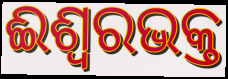
ଈଶ୍ୱରଭକ୍ତ